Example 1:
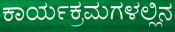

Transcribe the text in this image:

ಕಾರ್ಯಕ್ರಮಗಳಲ್ಲಿನ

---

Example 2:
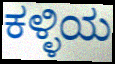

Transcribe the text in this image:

ಕಳ್ಳಿಯ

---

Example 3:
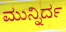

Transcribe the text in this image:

ಮುನ್ನಿರ್ದ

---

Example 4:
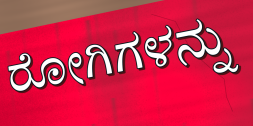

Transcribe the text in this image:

ರೋಗಿಗಳನ್ನು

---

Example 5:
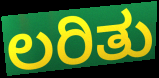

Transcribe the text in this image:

ಲರಿತು